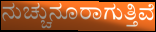
ನುಚ್ಚುನೂರಾಗುತ್ತಿವೆ